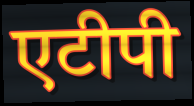
एटीपी